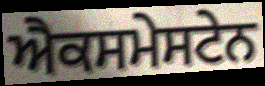
ਐਕਸਮੇਸਟੇਨ